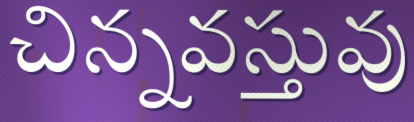
చిన్నవస్తువు